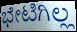
ಭೇಟಿಗಿಲ್ಲ